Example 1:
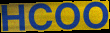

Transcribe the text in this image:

HCOO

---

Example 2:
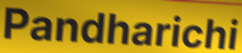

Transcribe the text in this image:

Pandharichi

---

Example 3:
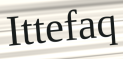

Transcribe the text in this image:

Ittefaq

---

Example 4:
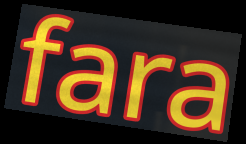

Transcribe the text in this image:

fara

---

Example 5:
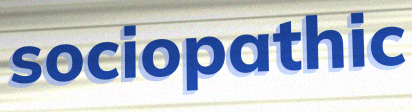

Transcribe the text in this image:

sociopathic